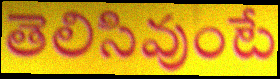
తెలిసివుంటే